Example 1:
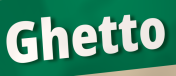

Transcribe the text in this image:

Ghetto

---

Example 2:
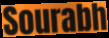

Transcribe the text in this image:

Sourabh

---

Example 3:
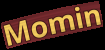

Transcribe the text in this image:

Momin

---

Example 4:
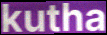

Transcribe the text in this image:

kutha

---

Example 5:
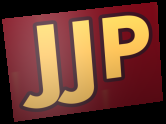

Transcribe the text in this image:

JJP